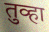
तुव्हा